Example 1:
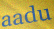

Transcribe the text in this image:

aadu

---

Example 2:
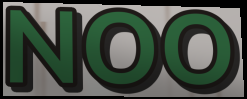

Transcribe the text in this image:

NOO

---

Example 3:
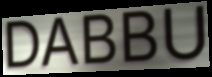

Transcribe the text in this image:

DABBU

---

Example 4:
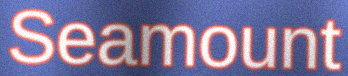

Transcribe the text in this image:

Seamount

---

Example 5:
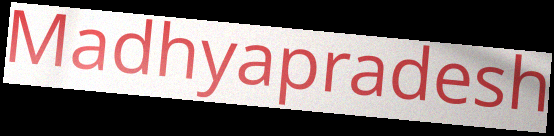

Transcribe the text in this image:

Madhyapradesh